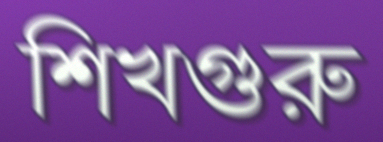
শিখগুরু